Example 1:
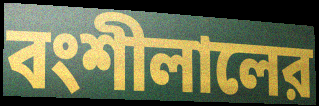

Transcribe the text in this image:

বংশীলালের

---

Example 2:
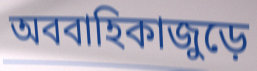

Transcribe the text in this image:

অববাহিকাজুড়ে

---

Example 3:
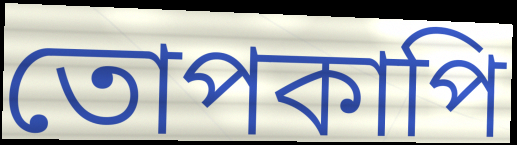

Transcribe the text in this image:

তোপকাপি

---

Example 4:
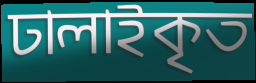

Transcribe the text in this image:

ঢালাইকৃত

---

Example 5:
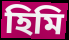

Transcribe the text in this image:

হিমি